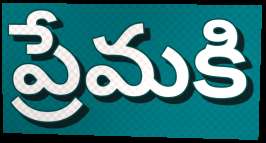
ప్రేమకి